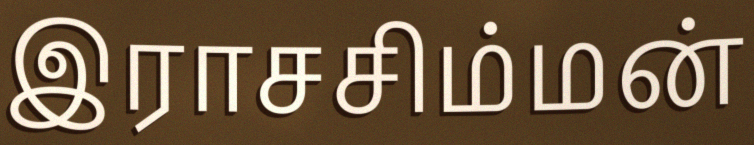
இராசசிம்மன்